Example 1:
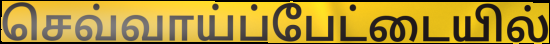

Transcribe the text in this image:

செவ்வாய்ப்பேட்டையில்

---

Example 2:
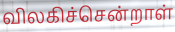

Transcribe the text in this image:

விலகிச்சென்றாள்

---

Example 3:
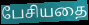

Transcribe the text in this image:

பேசியதை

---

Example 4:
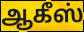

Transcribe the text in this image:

ஆகீஸ்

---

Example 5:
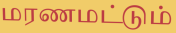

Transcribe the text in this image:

மரணமட்டும்